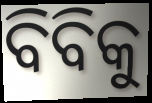
ବିବିକୁ